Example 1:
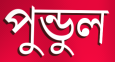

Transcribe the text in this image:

পুন্ডুল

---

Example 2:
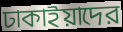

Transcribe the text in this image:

ঢাকাইয়াদের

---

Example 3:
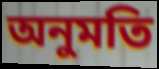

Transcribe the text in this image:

অনুমতি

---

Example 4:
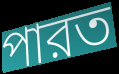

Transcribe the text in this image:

পারত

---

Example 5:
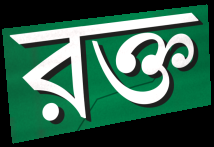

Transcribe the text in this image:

রক্ত